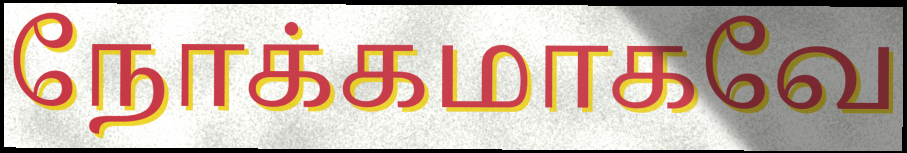
நோக்கமாகவே